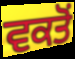
ਵਕਤੋਂ